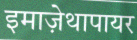
इमाज़ेथापायर